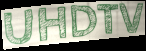
UHDTV